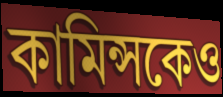
কামিন্সকেও